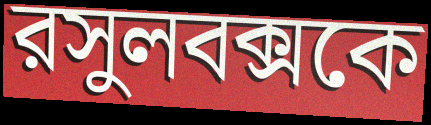
রসুলবক্সকে